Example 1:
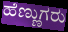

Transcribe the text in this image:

ಹೆಣ್ಣುಗರು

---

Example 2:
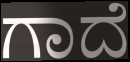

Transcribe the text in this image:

ಗಾದೆ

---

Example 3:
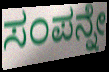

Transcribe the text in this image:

ಸಂಪನ್ನೇ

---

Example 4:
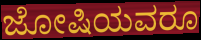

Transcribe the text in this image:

ಜೋಷಿಯವರೂ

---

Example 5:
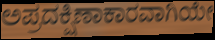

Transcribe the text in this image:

ಅಪ್ರದಕ್ಷಿಣಾಕಾರವಾಗಿಯೇ